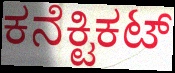
ಕನೆಕ್ಟಿಕಟ್